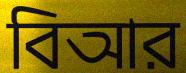
বিআর